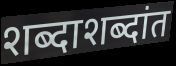
शब्दाशब्दांत